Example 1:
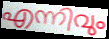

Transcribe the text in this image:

എന്നിവും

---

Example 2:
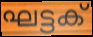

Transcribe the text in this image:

ഘട്ടക്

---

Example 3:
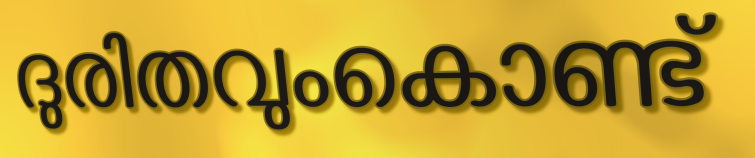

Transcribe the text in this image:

ദുരിതവുംകൊണ്ട്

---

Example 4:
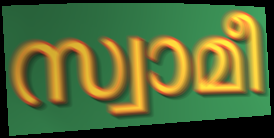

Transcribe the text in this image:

സ്വാമീ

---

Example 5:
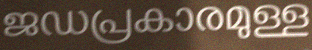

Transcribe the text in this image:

ജഡപ്രകാരമുള്ള